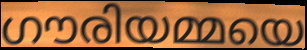
ഗൗരിയമ്മയെ